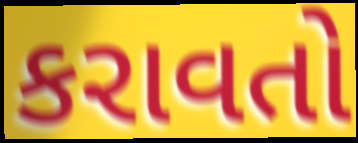
કરાવતો